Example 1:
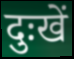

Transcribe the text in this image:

दुःखें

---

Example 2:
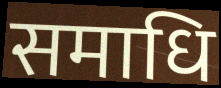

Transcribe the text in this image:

समाधि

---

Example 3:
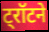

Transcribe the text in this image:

ट्रॉटने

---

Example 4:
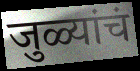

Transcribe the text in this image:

जुळ्यांचं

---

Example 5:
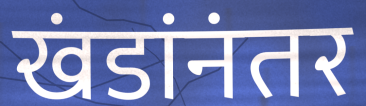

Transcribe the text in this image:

खंडांनंतर